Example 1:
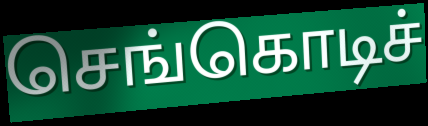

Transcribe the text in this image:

செங்கொடிச்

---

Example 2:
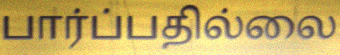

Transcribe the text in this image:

பார்ப்பதில்லை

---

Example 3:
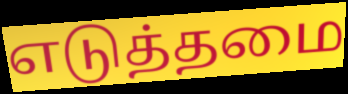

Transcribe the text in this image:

எடுத்தமை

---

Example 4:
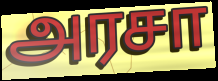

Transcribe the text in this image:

அரசா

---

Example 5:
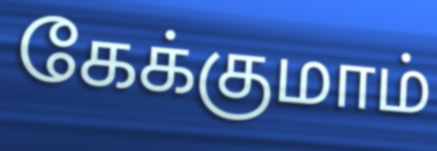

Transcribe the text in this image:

கேக்குமாம்